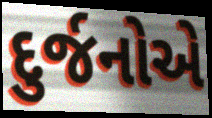
દુર્જનોએ